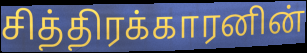
சித்திரக்காரனின்